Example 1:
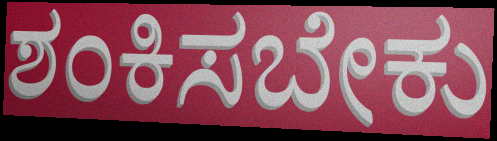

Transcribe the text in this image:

ಶಂಕಿಸಬೇಕು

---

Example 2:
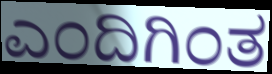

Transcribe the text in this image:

ಎಂದಿಗಿಂತ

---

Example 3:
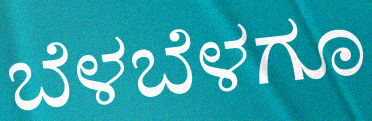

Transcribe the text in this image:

ಬೆಳಬೆಳಗೂ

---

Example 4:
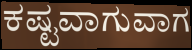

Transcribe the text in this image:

ಕಷ್ಟವಾಗುವಾಗ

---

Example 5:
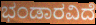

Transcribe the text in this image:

ಭಂಡಾರವಿದೆ